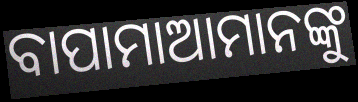
ବାପାମାଆମାନଙ୍କୁ